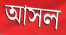
আসল